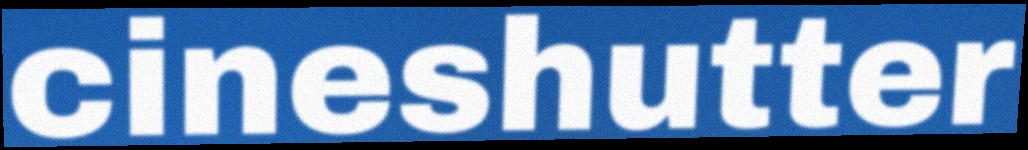
cineshutter